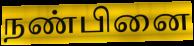
நண்பினை